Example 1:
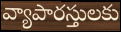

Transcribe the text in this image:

వ్యాపారస్తులకు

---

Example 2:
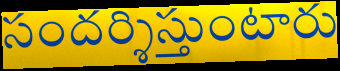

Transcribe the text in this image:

సందర్శిస్తుంటారు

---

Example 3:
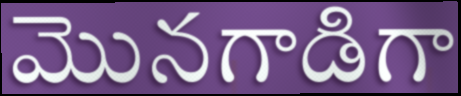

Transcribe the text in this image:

మొనగాడిగా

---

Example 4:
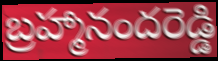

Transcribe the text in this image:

బ్రహ్మానందరెడ్డి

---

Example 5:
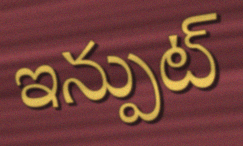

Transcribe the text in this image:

ఇన్పుట్